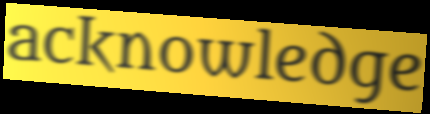
acknowledge